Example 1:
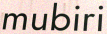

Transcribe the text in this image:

mubiri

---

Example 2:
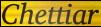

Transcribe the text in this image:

Chettiar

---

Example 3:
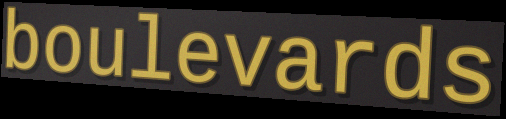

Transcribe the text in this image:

boulevards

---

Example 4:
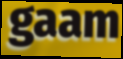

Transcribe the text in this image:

gaam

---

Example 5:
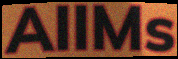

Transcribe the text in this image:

AIIMs